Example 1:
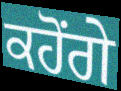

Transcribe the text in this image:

ਕਹੋਂਗੇ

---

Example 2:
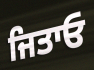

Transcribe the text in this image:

ਜਿਤਾਓ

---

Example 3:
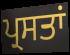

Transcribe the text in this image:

ਪ੍ਰਸਤਾਂ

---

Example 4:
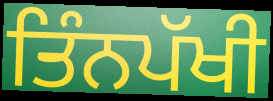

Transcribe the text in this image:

ਤਿੰਨਪੱਖੀ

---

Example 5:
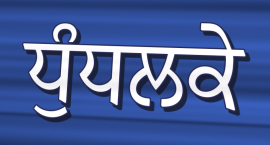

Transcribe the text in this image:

ਧੁੰਧਲਕੇ